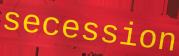
secession